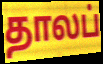
தாலப்